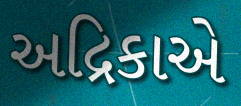
અદ્રિકાએ